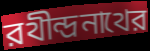
রথীন্দ্রনাথের